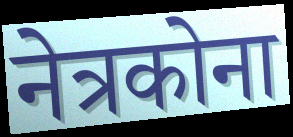
नेत्रकोना